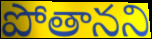
పోతానని